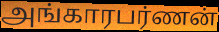
அங்காரபர்ணன்